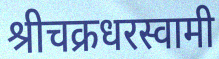
श्रीचक्रधरस्वामी